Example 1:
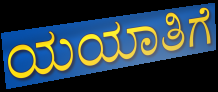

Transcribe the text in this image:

ಯಯಾತಿಗೆ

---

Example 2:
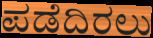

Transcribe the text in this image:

ಪಡೆದಿರಲು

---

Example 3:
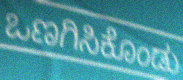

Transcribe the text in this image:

ಒಣಗಿಸಿಕೊಂಡು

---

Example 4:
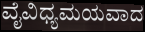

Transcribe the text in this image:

ವೈವಿಧ್ಯಮಯವಾದ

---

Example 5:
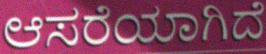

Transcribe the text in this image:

ಆಸರೆಯಾಗಿದೆ